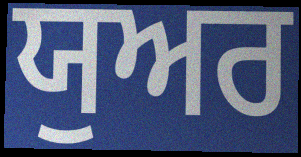
ਯੁਅਰ